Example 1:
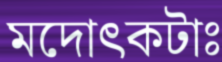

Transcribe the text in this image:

মদোৎকটাঃ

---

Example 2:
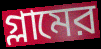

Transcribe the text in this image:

গ্লামের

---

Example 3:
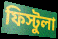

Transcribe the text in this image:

ফিস্টুলা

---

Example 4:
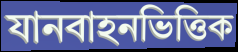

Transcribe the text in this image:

যানবাহনভিত্তিক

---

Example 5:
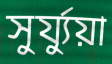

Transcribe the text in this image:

সুর্য্যুয়া